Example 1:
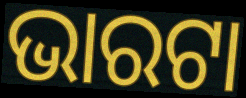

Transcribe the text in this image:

ଭାରଟା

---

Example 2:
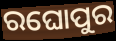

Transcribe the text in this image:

ରଘୋପୁର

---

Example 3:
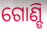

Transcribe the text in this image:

ଗୋଣ୍ଡି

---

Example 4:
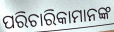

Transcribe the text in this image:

ପରିଚାରିକାମାନଙ୍କ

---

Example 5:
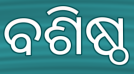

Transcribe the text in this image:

ବଶିଷ୍ଠ